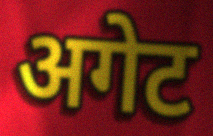
अगेट